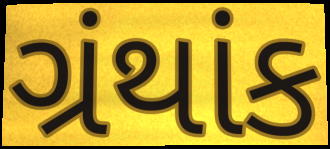
ગ્રંથાંક